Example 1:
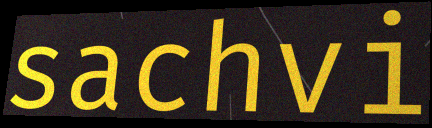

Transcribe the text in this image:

sachvi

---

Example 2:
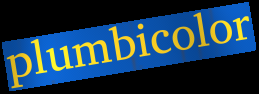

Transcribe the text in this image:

plumbicolor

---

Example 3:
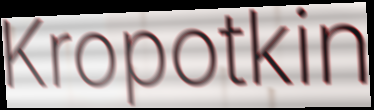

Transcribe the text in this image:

Kropotkin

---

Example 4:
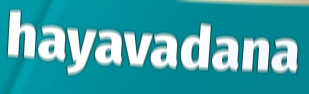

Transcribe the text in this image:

hayavadana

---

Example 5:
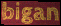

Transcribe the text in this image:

bigan